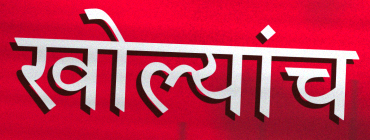
खोल्यांच